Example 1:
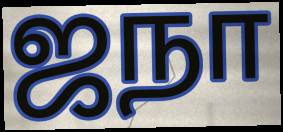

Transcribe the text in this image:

ஜநா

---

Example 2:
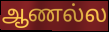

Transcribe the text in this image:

ஆணல்ல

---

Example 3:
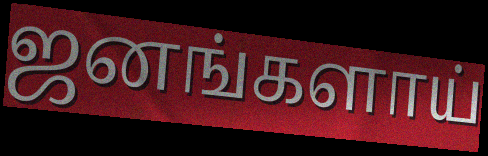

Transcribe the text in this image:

ஜனங்களாய்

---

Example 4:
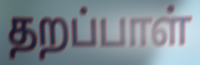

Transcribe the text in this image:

தறப்பாள்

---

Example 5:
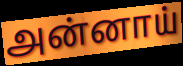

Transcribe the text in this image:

அன்னாய்